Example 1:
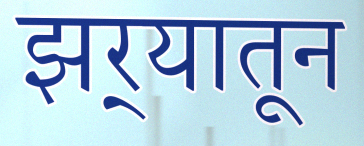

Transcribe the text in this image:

झर्यातून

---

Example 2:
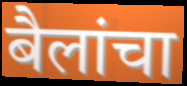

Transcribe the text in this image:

बैलांचा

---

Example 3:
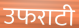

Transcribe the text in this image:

उफराटी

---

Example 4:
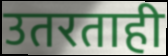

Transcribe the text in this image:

उतरताही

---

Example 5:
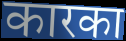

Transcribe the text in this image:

कारका